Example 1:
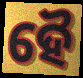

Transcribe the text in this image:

ହୈ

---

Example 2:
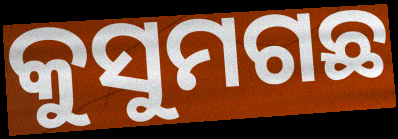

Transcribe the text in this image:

କୁସୁମଗଛ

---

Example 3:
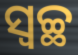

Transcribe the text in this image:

ସ୍ୱଚ୍ଛ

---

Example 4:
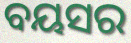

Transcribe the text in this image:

ବୟସର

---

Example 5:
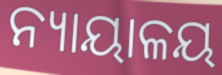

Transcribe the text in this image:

ନ୍ୟାୟାଳୟ